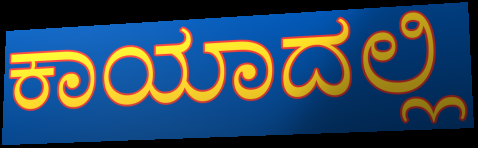
ಕಾಯಾದಲ್ಲಿ